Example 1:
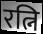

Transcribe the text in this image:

रत्नि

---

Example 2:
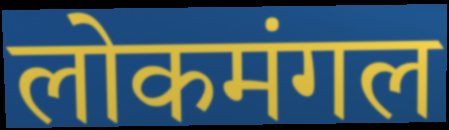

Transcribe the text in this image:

लोकमंगल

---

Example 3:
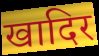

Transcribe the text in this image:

खादिर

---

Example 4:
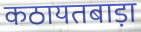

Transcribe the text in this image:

कठायतबाड़ा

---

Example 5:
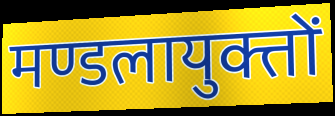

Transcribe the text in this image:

मण्डलायुक्तों